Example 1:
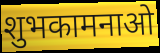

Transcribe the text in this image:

शुभकामनाओ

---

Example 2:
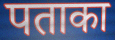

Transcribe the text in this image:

पताका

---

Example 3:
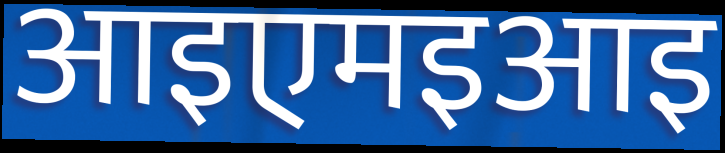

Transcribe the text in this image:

आइएमइआइ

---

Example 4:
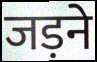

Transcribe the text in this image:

जड़ने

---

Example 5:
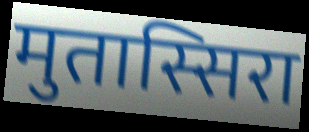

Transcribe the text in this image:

मुतास्सिरा